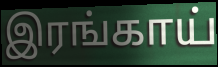
இரங்காய்